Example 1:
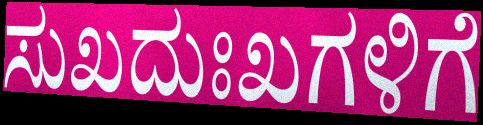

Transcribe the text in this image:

ಸುಖದುಃಖಗಳಿಗೆ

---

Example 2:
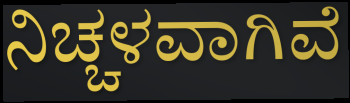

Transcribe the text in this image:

ನಿಚ್ಚಳವಾಗಿವೆ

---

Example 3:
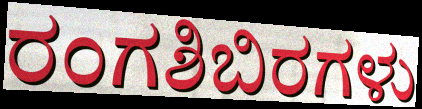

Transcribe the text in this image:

ರಂಗಶಿಬಿರಗಳು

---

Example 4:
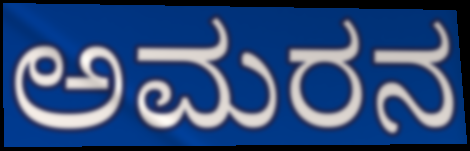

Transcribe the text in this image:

ಅಮರನ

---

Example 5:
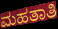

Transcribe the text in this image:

ಮಹತಾತಿ